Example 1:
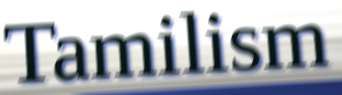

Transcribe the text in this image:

Tamilism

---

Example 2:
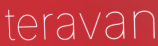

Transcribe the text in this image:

teravan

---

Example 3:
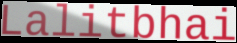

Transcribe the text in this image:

Lalitbhai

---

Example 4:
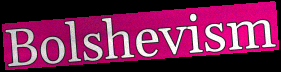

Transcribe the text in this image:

Bolshevism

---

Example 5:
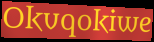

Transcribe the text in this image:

Okuqokiwe